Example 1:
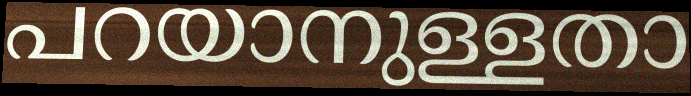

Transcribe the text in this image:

പറയാനുള്ളതാ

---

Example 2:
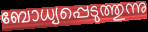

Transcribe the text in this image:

ബോധ്യപ്പെടുത്തുന്നു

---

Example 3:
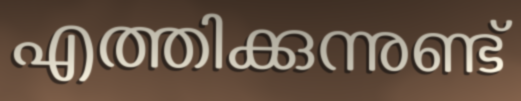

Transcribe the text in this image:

എത്തിക്കുന്നുണ്ട്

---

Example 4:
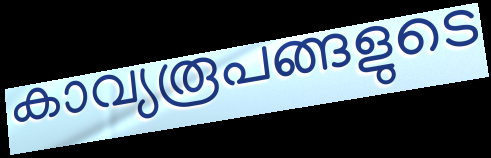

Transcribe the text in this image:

കാവ്യരൂപങ്ങളുടെ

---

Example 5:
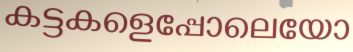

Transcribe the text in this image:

കട്ടകളെപ്പോലെയോ